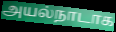
அயல்நாடாக